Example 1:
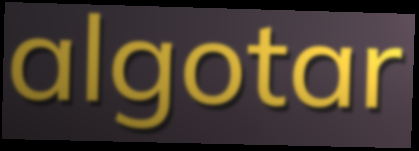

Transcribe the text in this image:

algotar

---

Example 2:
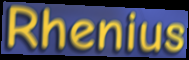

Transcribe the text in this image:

Rhenius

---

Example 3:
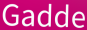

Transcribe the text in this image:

Gadde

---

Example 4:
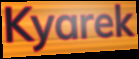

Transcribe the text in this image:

Kyarek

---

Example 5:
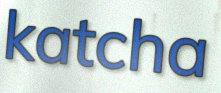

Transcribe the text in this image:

katcha